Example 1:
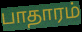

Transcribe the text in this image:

பாதாரம்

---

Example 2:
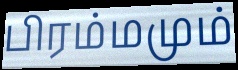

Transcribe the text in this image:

பிரம்மமும்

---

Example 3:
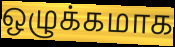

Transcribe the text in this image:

ஒழுக்கமாக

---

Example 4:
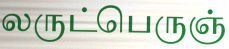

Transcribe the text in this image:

லருட்பெருஞ்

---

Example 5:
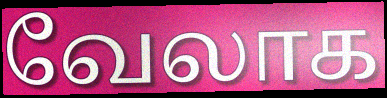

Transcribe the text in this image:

வேலாக